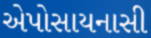
એપોસાયનાસી